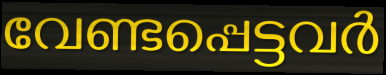
വേണ്ടപ്പെട്ടവർ